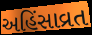
અહિંસાવ્રત